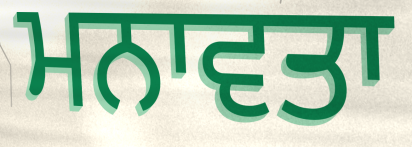
ਮਨਾਵਤਾ